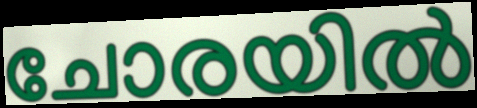
ചോരയിൽ